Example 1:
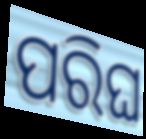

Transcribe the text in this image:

ପରିଘ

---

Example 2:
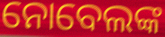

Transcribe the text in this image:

ନୋବେଲଙ୍କ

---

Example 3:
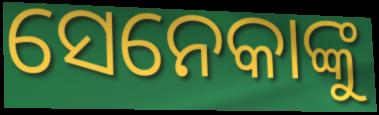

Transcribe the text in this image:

ସେନେକାଙ୍କୁ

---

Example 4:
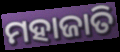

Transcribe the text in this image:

ମହାଜାତି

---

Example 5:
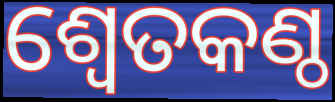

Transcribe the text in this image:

ଶ୍ୱେତକଣ୍ଠ